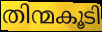
തിന്മകൂടി